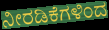
ನೀರಡಿಕೆಗಳಿಂದ